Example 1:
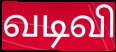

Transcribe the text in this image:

வடிவி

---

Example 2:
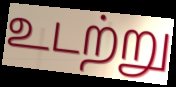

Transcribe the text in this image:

உடற்று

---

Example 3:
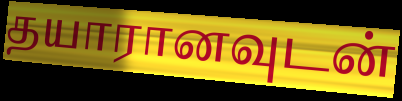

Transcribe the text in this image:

தயாரானவுடன்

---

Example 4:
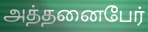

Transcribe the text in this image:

அத்தனைபேர்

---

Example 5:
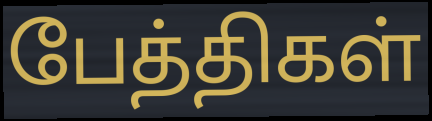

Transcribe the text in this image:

பேத்திகள்